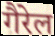
गैरेल